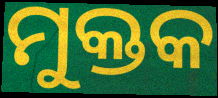
ମୁକ୍ତକ